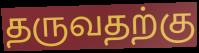
தருவதற்கு